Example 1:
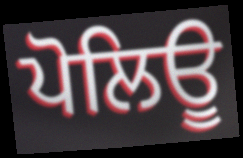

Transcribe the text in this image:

ਪੋਲਿਊ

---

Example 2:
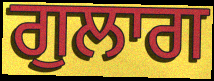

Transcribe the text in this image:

ਗੁਲਾਗ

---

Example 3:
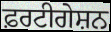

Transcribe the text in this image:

ਫ਼ਰਟੀਗੇਸ਼ਨ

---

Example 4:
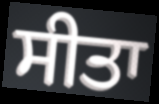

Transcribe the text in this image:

ਸੀਤਾ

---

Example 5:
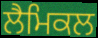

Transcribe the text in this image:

ਲੈਮਿਕਲ